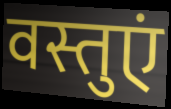
वस्तुएं